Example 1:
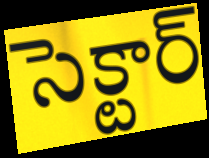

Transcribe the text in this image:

సెక్టార్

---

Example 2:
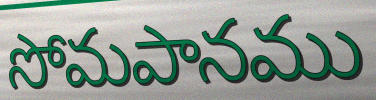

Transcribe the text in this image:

సోమపానము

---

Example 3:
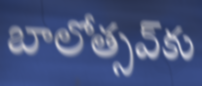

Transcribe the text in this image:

బాలోత్సవ్‌కు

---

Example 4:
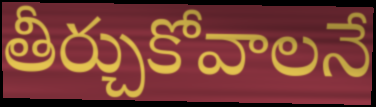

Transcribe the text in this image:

తీర్చుకోవాలనే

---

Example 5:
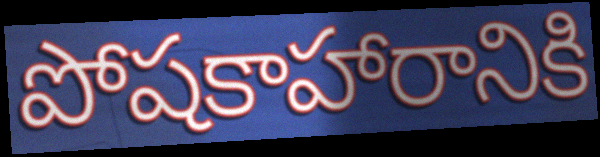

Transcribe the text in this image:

పోషకాహారానికి